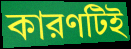
কারণটিই